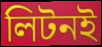
লিটনই